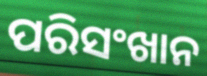
ପରିସଂଖାନ